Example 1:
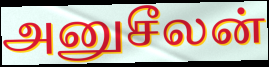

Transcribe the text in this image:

அனுசீலன்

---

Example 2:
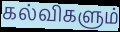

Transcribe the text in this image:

கல்விகளும்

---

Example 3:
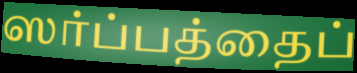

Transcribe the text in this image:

ஸர்ப்பத்தைப்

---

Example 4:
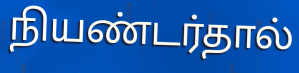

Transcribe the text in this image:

நியண்டர்தால்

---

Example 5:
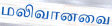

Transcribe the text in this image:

மலிவானவை